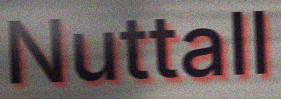
Nuttall